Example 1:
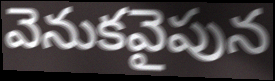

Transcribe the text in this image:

వెనుకవైపున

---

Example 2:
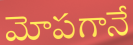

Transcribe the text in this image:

మోపగానే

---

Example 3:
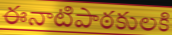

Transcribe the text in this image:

ఈనాటిపాఠకులకి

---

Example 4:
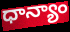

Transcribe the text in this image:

ధాన్యాం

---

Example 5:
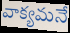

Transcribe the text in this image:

వాక్యమనే